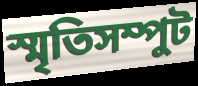
স্মৃতিসম্পুট